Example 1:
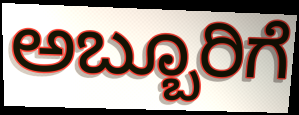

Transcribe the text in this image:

ಅಬ್ಬೂರಿಗೆ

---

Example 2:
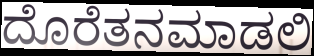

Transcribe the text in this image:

ದೊರೆತನಮಾಡಲಿ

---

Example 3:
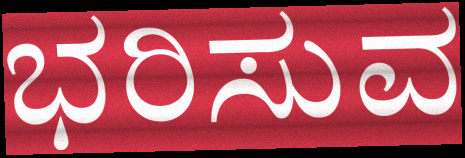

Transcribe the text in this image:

ಭರಿಸುವ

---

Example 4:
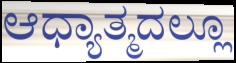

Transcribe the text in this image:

ಆಧ್ಯಾತ್ಮದಲ್ಲೂ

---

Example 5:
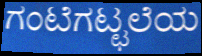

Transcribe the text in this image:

ಗಂಟೆಗಟ್ಟಲೆಯ